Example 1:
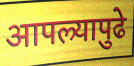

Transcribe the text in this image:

आपल्यापुढे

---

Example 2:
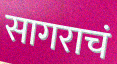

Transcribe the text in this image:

सागराचं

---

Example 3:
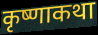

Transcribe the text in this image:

कृष्णाकथा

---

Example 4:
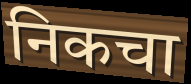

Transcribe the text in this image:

निकचा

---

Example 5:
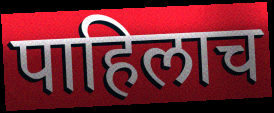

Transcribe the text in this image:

पाहिलाच